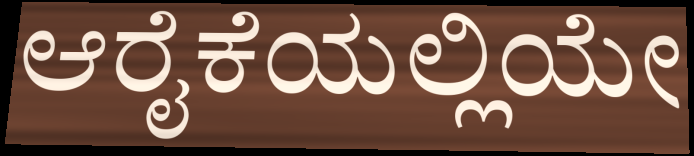
ಆರೈಕೆಯಲ್ಲಿಯೇ